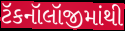
ટૅકનૉલૉજીમાંથી